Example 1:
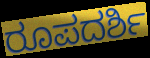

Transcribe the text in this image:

ರೂಪದರ್ಶಿ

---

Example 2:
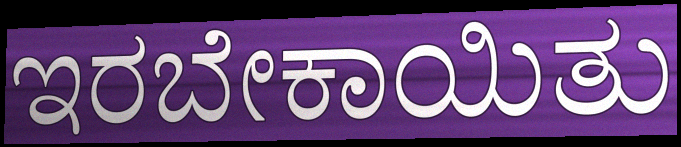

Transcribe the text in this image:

ಇರಬೇಕಾಯಿತು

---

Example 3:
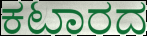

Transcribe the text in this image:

ಕಟಾರದ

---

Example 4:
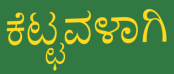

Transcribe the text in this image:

ಕೆಟ್ಟವಳಾಗಿ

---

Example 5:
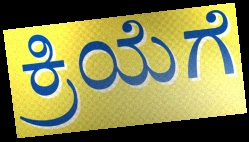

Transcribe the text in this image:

ಕ್ರಿಯೆಗೆ